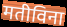
मतीविना